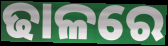
ଢାଳରେ